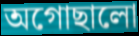
অগোছালো